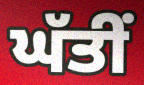
ਘੱਤੀਂ